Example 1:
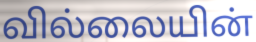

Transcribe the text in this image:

வில்லையின்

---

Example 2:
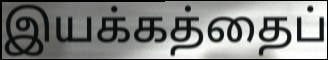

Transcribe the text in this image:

இயக்கத்தைப்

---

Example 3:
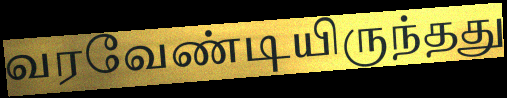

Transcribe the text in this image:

வரவேண்டியிருந்தது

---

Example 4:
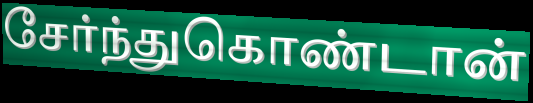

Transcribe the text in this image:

சேர்ந்துகொண்டான்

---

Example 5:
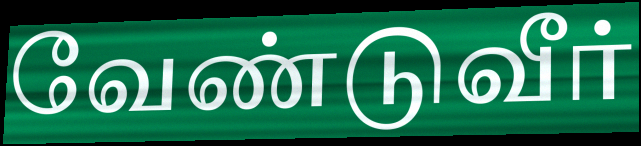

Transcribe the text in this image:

வேண்டுவீர்